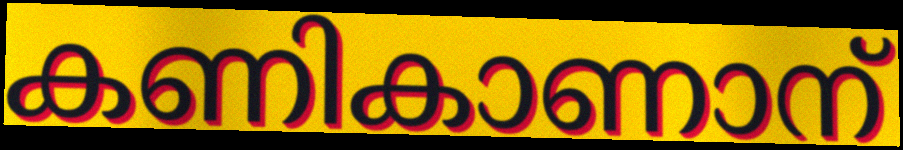
കണികാണാന്